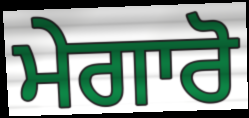
ਮੇਗਾਰੋ